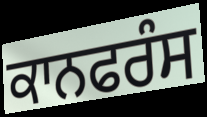
ਕਾਨਫਰੰਸ